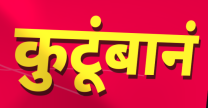
कुटूंबानं